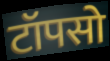
टॉपसो